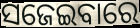
ସଜେଇବାରେ